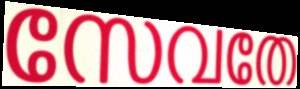
സേവതേ